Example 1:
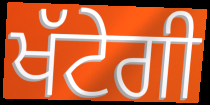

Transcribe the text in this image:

ਖੱਟੇਗੀ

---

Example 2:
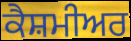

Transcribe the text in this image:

ਕੈਸ਼ਮੀਅਰ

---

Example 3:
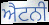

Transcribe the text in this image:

ਐਟਨੀ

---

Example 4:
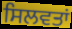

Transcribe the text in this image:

ਸਿਲਵਤਾਂ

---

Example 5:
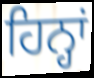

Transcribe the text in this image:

ਹਿਨ੍ਹਾਂ